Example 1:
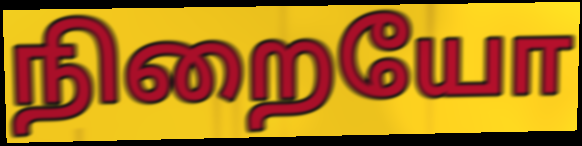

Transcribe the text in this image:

நிறையோ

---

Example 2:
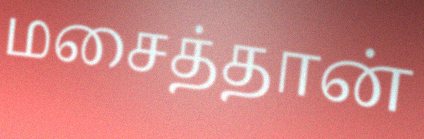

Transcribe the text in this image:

மசைத்தான்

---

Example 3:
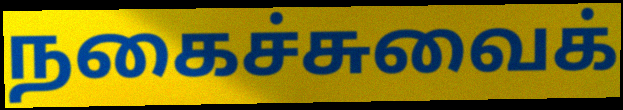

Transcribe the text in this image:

நகைச்சுவைக்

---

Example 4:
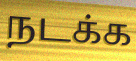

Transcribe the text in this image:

நடக்க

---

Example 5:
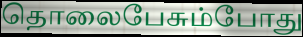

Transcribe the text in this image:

தொலைபேசும்போது